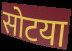
सोटया